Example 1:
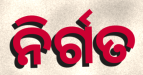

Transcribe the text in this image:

ନିର୍ଗତ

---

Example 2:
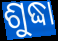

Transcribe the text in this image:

ଶୁଦ୍ଧା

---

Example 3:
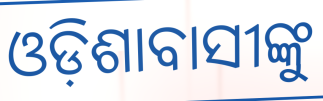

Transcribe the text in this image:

ଓଡ଼ିଶାବାସୀଙ୍କୁ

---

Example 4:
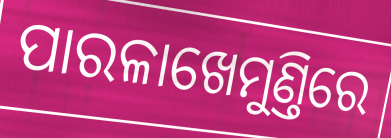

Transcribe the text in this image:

ପାରଳାଖେମୁଣ୍ତିରେ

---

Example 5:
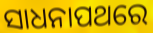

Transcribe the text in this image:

ସାଧନାପଥରେ